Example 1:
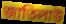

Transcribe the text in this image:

জাতিলাউ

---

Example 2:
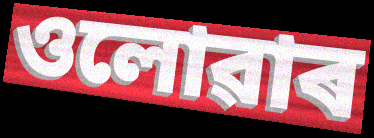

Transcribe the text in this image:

ওলোৱাৰ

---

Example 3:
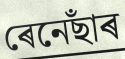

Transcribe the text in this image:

ৰেনেছাঁৰ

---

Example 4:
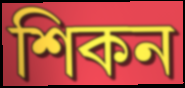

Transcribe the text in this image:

শিকন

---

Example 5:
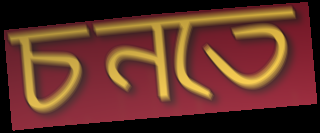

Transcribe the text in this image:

চনতে